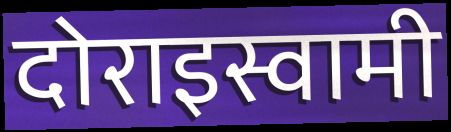
दोराइस्वामी